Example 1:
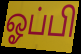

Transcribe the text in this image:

ஓப்பி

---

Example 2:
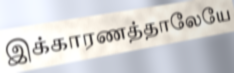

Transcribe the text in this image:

இக்காரணத்தாலேயே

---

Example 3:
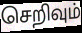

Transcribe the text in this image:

செறிவும்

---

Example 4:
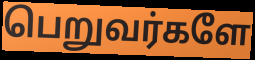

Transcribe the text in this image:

பெறுவர்களே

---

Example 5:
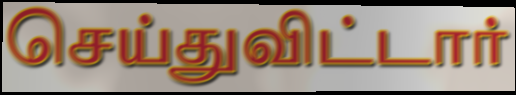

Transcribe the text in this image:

செய்துவிட்டார்